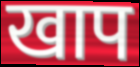
खाप